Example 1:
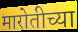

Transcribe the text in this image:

मारोतीच्या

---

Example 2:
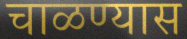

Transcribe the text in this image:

चाळण्यास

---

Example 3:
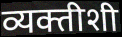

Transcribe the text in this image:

व्यक्‍तीशी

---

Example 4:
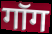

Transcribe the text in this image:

गॉग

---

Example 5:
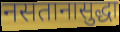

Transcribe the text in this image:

नसतानासुद्धा